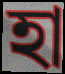
হা